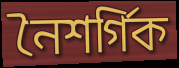
নৈশৰ্গিক